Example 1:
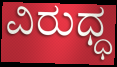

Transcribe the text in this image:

ವಿರುಧ್ಧ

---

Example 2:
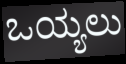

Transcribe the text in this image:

ಒಯ್ಯಲು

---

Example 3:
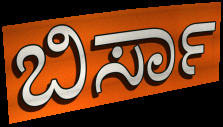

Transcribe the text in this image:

ಬಿರ್ಸಾ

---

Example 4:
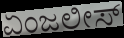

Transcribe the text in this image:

ಏಂಜಲೀಸ್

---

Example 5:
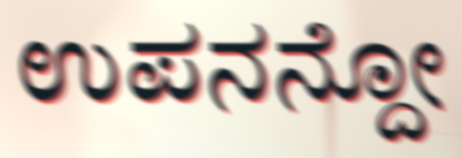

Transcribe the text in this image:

ಉಪನನ್ದೋ